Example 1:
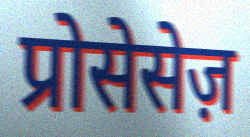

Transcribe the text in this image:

प्रोसेसेज़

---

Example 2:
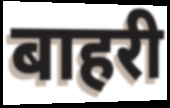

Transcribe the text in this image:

बाहरी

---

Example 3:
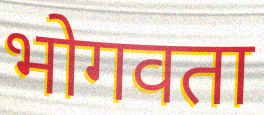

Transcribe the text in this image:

भोगवता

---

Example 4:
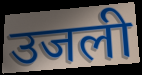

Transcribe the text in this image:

उजली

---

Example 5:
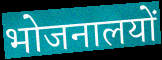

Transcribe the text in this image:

भोजनालयों